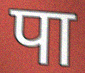
पा